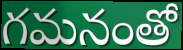
గమనంతో